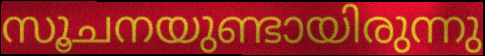
സൂചനയുണ്ടായിരുന്നു